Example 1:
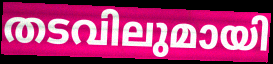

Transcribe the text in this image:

തടവിലുമായി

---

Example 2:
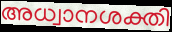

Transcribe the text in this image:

അധ്വാനശക്തി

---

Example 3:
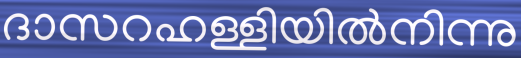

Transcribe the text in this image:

ദാസറഹള്ളിയിൽനിന്നു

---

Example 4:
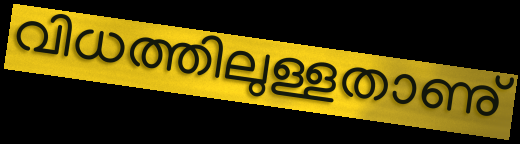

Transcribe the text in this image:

വിധത്തിലുള്ളതാണു്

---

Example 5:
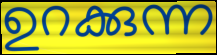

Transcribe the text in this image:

ഉറക്കുന്ന